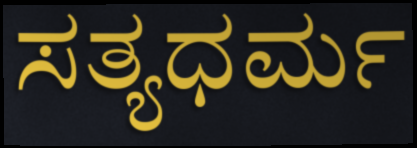
ಸತ್ಯಧರ್ಮ